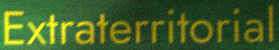
Extraterritorial